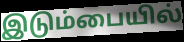
இடும்பையில்